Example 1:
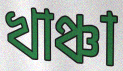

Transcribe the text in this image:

খাঞ্চা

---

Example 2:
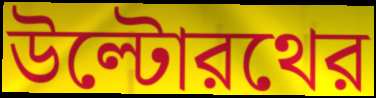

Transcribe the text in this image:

উল্টোরথের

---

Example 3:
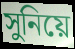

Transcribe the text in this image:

সুনিয়ে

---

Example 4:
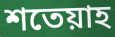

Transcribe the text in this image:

শতেয়াহ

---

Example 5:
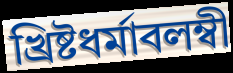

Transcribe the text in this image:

খ্রিষ্টধর্মাবলম্বী